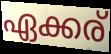
ഏക്കര്